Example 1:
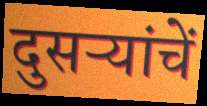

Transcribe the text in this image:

दुसऱ्यांचें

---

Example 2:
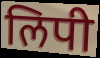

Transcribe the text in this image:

लिपी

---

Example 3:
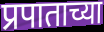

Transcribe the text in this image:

प्रपाताच्या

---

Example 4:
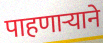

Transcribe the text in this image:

पाहणार्‍याने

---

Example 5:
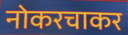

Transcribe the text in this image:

नोकरचाकर